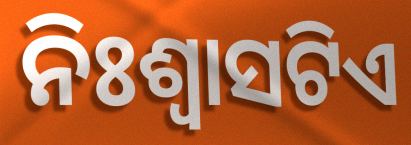
ନିଃଶ୍ୱାସଟିଏ